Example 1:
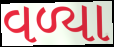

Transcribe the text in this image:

વળ્યા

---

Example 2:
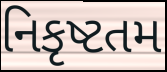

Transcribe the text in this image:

નિકૃષ્ટતમ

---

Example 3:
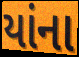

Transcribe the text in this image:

યાંના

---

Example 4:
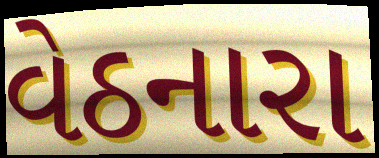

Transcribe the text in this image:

વેઠનારા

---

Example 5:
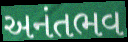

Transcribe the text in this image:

અનંતભવ